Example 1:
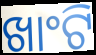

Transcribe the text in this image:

ଖାଂଟି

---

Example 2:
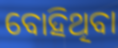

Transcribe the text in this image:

ବୋହିଥିବା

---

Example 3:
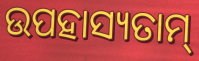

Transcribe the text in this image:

ଉପହାସ୍ୟତାମ୍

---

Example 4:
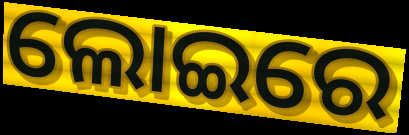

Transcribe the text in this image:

ଲୋଇରେ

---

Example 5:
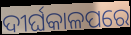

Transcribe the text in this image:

ଦୀର୍ଘକାଳପରେ